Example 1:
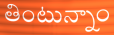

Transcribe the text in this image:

తింటున్నాం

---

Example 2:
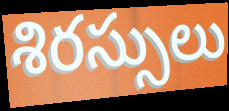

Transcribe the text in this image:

శిరస్సులు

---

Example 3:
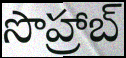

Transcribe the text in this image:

సొహ్రాబ్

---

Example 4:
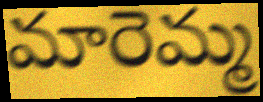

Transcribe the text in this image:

మారెమ్మ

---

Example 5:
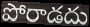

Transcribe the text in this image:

పోరాడదు